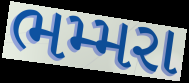
ભમ્મરા